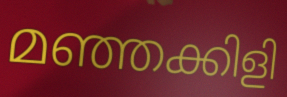
മഞ്ഞക്കിളി